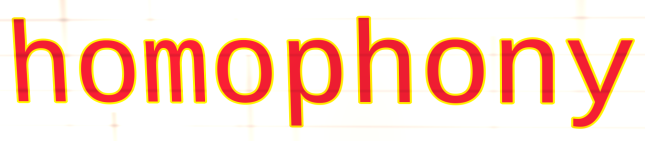
homophony